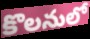
కొలనులో